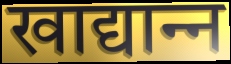
खाद्यान्‍न